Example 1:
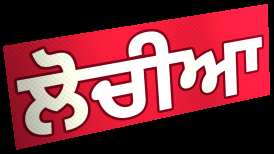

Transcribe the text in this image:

ਲੋਚੀਆ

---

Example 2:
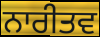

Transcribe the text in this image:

ਨਾਰੀਤਵ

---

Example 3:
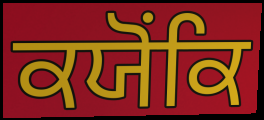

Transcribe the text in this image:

ਕਯੋਂਕਿ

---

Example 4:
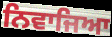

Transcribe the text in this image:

ਨਿਵਾਜਿਆ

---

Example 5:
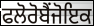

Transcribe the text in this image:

ਫਲੋਰੋਬੈਂਜੋਇਕ